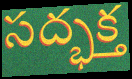
సద్భక్త